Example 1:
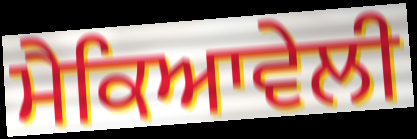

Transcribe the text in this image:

ਮੈਕਿਆਵੇਲੀ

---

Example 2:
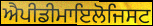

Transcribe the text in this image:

ਐਪੀਡੀਮਾਇਲੋਜਿਸਟ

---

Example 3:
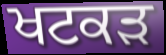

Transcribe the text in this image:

ਖਟਕੜ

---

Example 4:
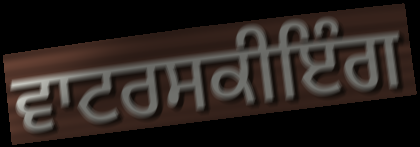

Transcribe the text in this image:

ਵਾਟਰਸਕੀਇੰਗ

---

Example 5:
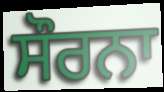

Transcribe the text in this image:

ਸੌਰਨਾ